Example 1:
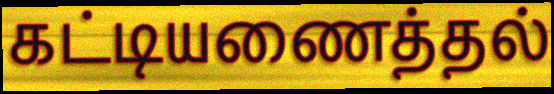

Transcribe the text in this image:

கட்டியணைத்தல்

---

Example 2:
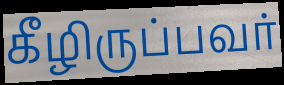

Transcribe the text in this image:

கீழிருப்பவர்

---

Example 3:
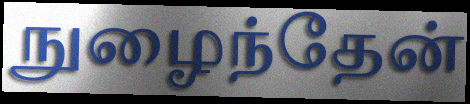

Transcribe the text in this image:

நுழைந்தேன்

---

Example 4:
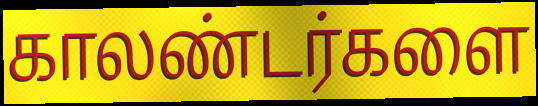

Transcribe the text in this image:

காலண்டர்களை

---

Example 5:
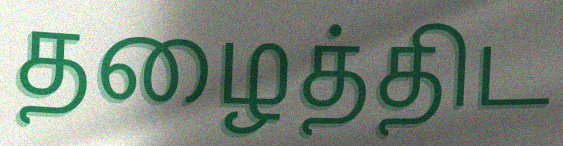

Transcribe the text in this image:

தழைத்திட